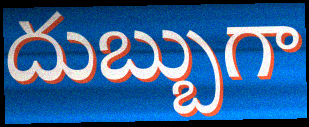
దుబ్బుగా